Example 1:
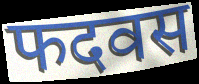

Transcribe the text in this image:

फदवस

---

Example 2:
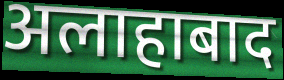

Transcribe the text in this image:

अलाहाबाद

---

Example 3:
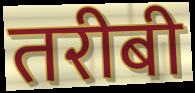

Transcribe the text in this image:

तरीबी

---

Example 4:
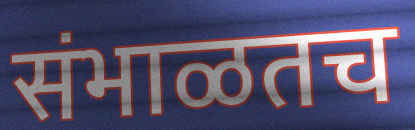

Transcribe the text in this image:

संभाळतच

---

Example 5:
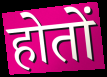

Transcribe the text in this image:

होतों